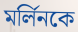
মর্লিনকে